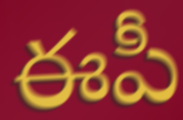
ఈపీ